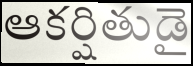
ఆకర్షితుడై